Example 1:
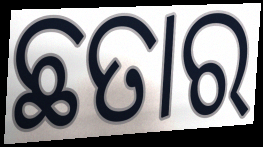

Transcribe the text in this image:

ଛତାର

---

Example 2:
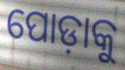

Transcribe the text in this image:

ପୋଡ଼ାକୁ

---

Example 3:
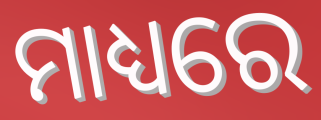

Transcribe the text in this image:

ମାଧ୍ୟରେ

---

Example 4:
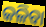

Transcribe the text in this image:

କଳିବା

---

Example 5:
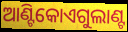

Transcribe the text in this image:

ଆଣ୍ଟିକୋଏଗୁଲାଣ୍ଟ